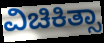
ವಿಚಿಕಿತ್ಸಾ